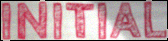
INITIAL